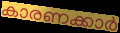
കാരണക്കാർ